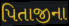
પિતાજીના